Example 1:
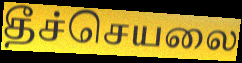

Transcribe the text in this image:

தீச்செயலை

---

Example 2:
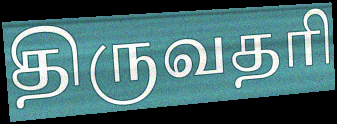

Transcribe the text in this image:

திருவதரி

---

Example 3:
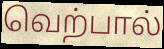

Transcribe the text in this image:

வெற்பால்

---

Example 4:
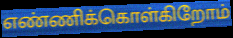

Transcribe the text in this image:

எண்ணிக்கொள்கிறோம்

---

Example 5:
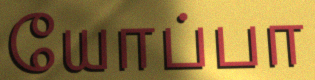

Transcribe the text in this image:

யோப்பா